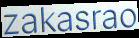
zakasrao